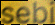
sebi